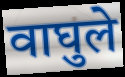
वाघुले